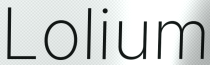
Lolium